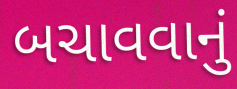
બચાવવાનું